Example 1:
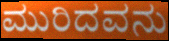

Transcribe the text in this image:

ಮುರಿದವನು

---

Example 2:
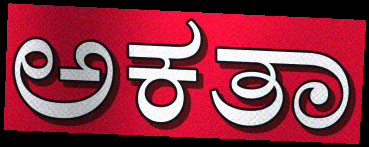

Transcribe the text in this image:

ಅಕತಾ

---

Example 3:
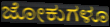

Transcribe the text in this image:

ಜೋಕುಗಳೂ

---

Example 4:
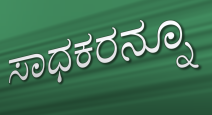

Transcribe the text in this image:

ಸಾಧಕರನ್ನೂ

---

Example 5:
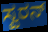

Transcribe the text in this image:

ಸ್ವರನ್